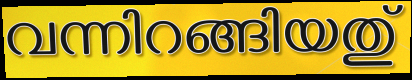
വന്നിറങ്ങിയതു്